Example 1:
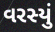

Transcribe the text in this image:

વરસ્યું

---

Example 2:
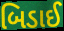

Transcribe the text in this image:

બિડાઈ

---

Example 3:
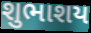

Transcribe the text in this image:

શુભાશય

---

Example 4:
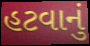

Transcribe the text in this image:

હટવાનું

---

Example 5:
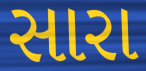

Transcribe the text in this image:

સારા